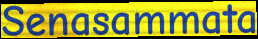
Senasammata